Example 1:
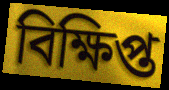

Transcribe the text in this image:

বিক্ষিপ্ত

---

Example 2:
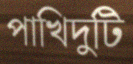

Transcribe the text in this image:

পাখিদুটি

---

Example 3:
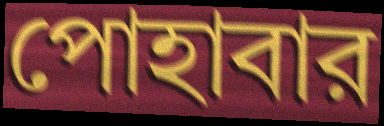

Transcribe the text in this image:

পোহাবার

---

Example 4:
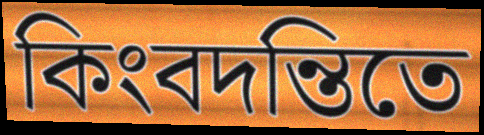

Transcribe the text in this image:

কিংবদন্তিতে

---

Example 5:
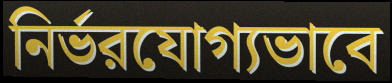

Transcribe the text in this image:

নির্ভরযোগ্যভাবে